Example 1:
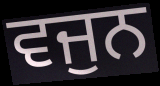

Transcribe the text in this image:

ਵਜੁਨ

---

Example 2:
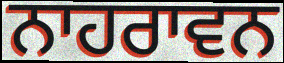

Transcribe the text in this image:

ਨਾਹਰਾਵਨ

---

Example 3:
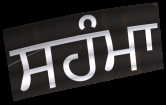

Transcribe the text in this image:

ਸਹੰਮਾ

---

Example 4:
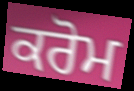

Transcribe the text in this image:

ਕਰੋਮ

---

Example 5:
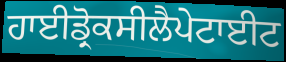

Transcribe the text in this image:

ਹਾਈਡ੍ਰੋਕਸੀਲੈਪੇਟਾਈਟ